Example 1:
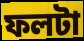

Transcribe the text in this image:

ফলটা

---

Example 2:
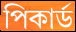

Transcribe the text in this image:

পিকার্ড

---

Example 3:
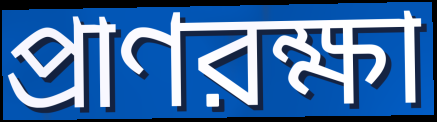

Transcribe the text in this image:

প্রাণরক্ষা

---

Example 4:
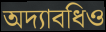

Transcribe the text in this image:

অদ্যাবধিও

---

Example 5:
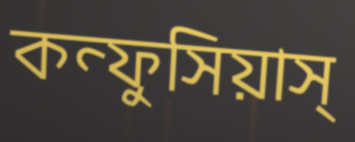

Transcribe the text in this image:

কন্ফুসিয়াস্